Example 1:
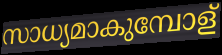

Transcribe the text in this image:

സാധ്യമാകുമ്പോള്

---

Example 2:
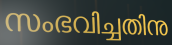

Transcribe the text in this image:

സംഭവിച്ചതിനു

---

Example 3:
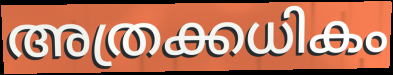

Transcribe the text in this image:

അത്രക്കധികം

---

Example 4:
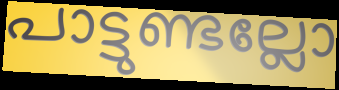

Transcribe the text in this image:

പാട്ടുണ്ടല്ലോ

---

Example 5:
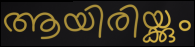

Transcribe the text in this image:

ആയിരിയ്ക്കും